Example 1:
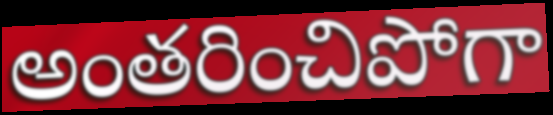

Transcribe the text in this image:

అంతరించిపోగా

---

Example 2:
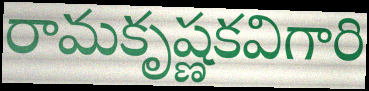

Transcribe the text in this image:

రామకృష్ణకవిగారి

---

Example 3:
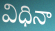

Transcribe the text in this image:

విధినా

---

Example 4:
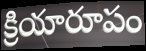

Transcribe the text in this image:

క్రియారూపం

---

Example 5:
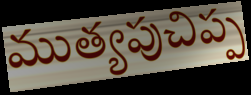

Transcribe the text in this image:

ముత్యపుచిప్ప